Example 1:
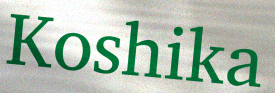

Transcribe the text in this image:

Koshika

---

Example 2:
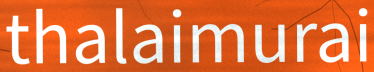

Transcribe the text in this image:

thalaimurai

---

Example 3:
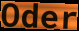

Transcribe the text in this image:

Oder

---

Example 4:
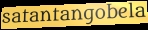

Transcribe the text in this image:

satantangobela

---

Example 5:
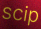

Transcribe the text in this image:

scip